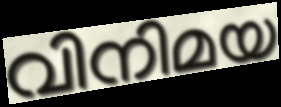
വിനിമയ